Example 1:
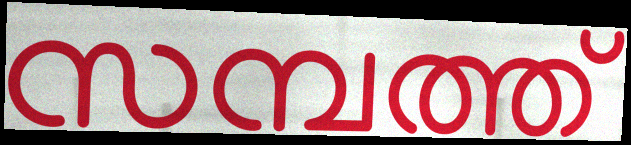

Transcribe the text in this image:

സമ്പത്ത്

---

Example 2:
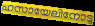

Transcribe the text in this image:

ഹസായേലിനോടു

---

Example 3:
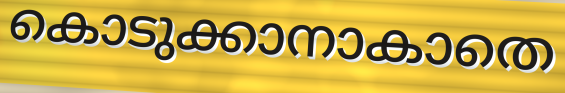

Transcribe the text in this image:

കൊടുക്കാനാകാതെ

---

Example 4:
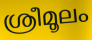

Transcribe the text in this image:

ശ്രീമൂലം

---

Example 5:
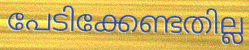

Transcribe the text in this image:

പേടിക്കേണ്ടതില്ല